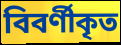
বিবর্ণীকৃত